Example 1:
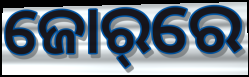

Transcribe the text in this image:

ଜୋର୍‌ରେ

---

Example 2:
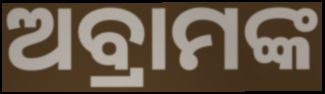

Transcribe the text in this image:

ଅବ୍ରାମଙ୍କ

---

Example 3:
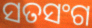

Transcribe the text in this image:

ସତସଂଗ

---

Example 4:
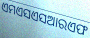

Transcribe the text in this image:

ଏମଏସଏସଆରଏଫ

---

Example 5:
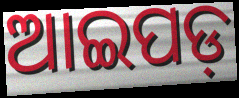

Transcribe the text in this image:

ଆଇପଡ଼